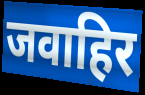
जवाहिर